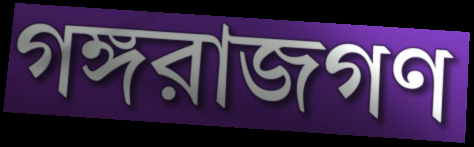
গঙ্গরাজগণ